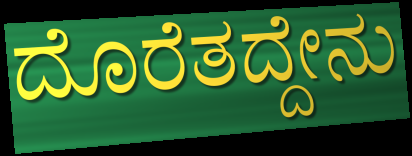
ದೊರೆತದ್ದೇನು